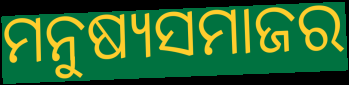
ମନୁଷ୍ୟସମାଜର